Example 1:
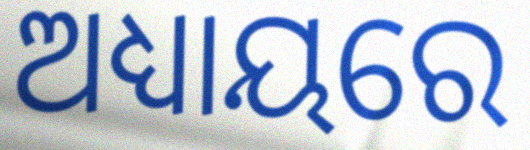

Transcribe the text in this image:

ଅଧ୍ୟାୟରେ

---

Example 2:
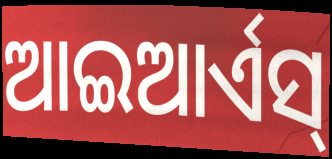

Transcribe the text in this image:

ଆଇଆର୍ଏସ୍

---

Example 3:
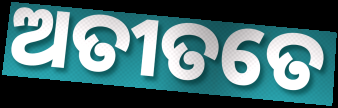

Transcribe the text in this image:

ଅତୀତତେ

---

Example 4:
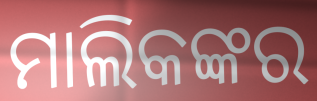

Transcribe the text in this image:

ମାଲିକଙ୍କର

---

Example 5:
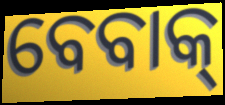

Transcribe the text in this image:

ବେବାକ୍